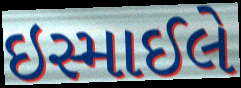
ઇસ્માઈલે